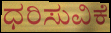
ಧರಿಸುವಿಕೆ